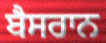
ਬੈਸਰਾਨ